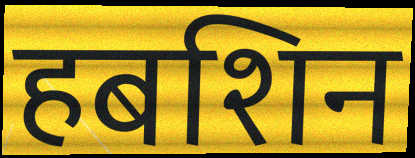
हबशिन